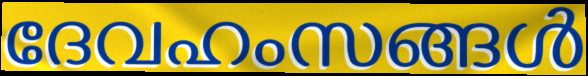
ദേവഹംസങ്ങൾ